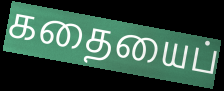
கதையைப்